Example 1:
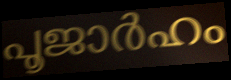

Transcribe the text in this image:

പൂജാർഹം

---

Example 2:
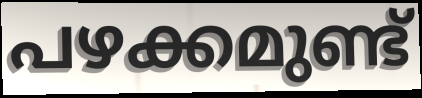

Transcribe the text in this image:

പഴക്കമുണ്ട്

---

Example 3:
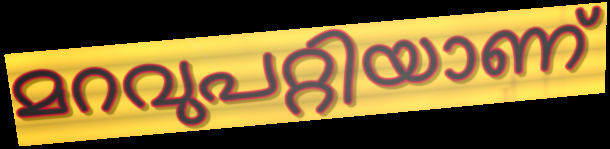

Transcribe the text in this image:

മറവുപറ്റിയാണ്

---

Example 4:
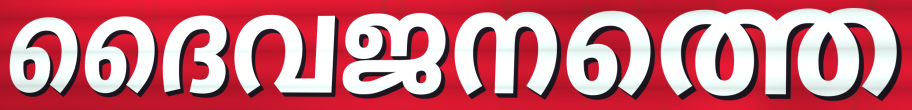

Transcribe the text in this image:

ദൈവജനത്തെ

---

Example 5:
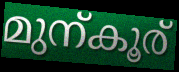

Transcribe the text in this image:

മുന്കൂര്